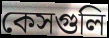
কেসগুলি